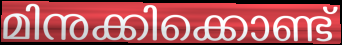
മിനുക്കിക്കൊണ്ട്